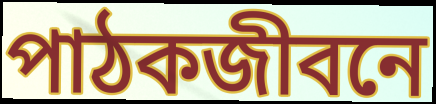
পাঠকজীবনে